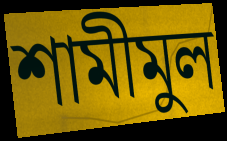
শামীমুল